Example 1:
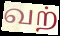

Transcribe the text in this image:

வற்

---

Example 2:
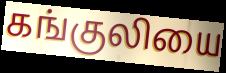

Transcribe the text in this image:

கங்குலியை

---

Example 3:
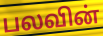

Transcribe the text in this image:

பலவின்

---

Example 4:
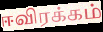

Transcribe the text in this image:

ஈவிரக்கம்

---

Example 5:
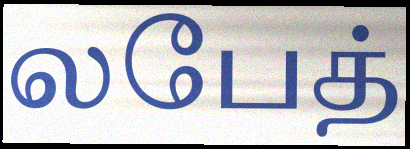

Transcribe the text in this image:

லபேத்